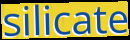
silicate